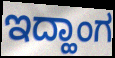
ಇದ್ಹಾಂಗ